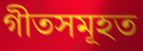
গীতসমূহত